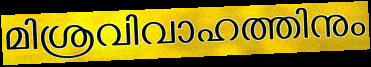
മിശ്രവിവാഹത്തിനും